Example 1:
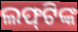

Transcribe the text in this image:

ଲଫ୍‌ଟିଙ୍କ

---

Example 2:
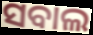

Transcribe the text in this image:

ସବାଲ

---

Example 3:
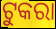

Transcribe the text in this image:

ଟୁକରା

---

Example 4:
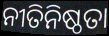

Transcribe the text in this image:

ନୀତିନିଷ୍ଠତା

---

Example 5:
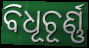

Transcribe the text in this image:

ବିଧୂଚୂର୍ଣ୍ଣ